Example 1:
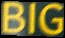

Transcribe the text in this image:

BIG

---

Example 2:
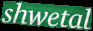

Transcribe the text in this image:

shwetal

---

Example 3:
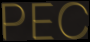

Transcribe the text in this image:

PEC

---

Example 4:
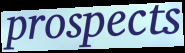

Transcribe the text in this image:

prospects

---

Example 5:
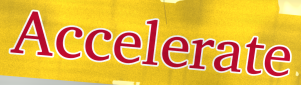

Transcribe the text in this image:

Accelerate